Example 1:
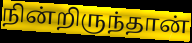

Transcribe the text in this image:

நின்றிருந்தான்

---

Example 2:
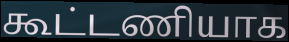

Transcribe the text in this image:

கூட்டணியாக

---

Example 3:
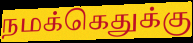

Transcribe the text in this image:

நமக்கெதுக்கு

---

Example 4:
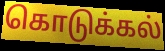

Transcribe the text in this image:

கொடுக்கல்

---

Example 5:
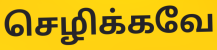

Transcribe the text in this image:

செழிக்கவே